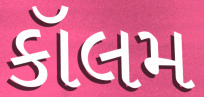
કૉલમ